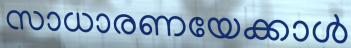
സാധാരണയേക്കാൾ